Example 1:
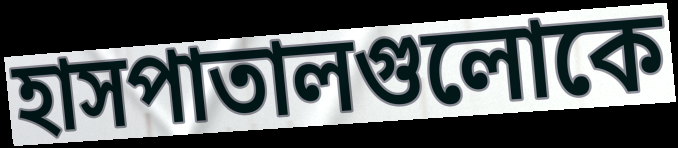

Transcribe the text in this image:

হাসপাতালগুলোকে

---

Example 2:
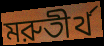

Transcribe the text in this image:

মরুতীর্থ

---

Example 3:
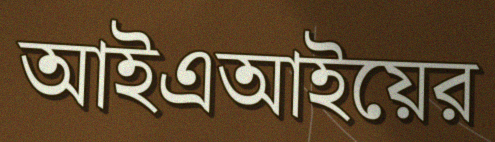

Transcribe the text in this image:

আইএআইয়ের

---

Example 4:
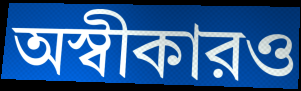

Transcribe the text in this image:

অস্বীকারও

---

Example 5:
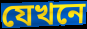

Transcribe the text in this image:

যেখনে